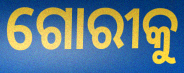
ଗୋରୀକୁ